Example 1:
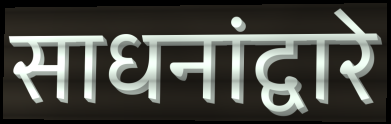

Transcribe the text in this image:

साधनांद्वारे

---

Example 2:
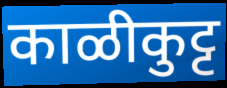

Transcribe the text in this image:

काळीकुट्ट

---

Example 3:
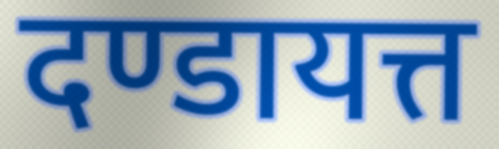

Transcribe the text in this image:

दण्डायत्त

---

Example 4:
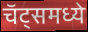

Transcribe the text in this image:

चॅट्समध्ये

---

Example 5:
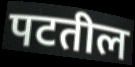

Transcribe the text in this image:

पटतील